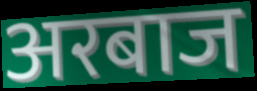
अरबाज